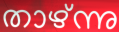
താഴ്ന്നു